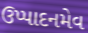
ઉપ્પાદનમેવ